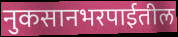
नुकसानभरपाईतील